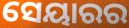
ସେୟାରର